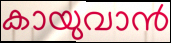
കായുവാൻ